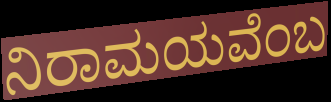
ನಿರಾಮಯವೆಂಬ